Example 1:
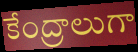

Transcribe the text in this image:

కేంద్రాలుగా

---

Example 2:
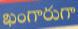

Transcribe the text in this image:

ఖంగారుగా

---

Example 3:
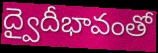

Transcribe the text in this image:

ద్వైదీభావంతో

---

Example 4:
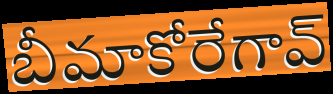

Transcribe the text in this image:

బీమాకోరేగావ్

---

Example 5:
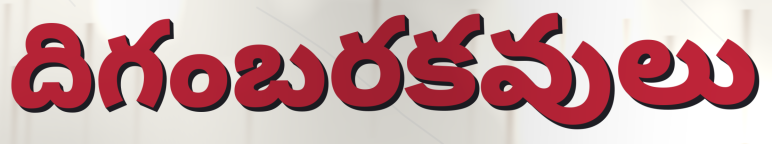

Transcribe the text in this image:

దిగంబరకవులు